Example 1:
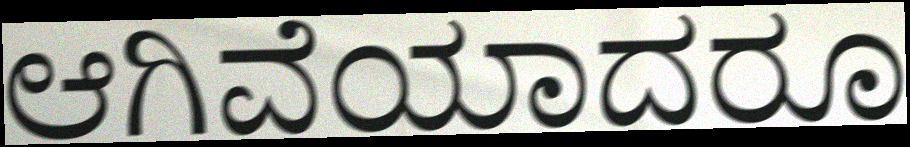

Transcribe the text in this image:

ಆಗಿವೆಯಾದರೂ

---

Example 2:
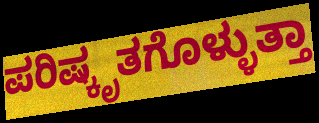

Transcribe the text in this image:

ಪರಿಷ್ಕೃತಗೊಳ್ಳುತ್ತಾ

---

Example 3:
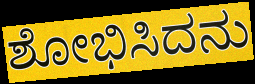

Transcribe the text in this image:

ಶೋಭಿಸಿದನು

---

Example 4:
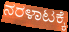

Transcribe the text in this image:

ನರಳಾಟಕ್ಕೆ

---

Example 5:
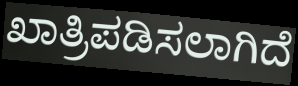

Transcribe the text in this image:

ಖಾತ್ರಿಪಡಿಸಲಾಗಿದೆ